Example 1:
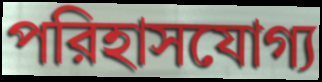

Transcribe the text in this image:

পরিহাসযোগ্য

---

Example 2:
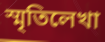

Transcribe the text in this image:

স্মৃতিলেখা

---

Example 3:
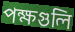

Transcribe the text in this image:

পক্ষগুলি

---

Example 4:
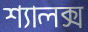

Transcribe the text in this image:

শ্যালক্স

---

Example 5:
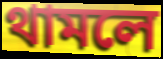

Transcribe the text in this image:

থামলে